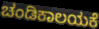
ಚಂಡಿಕಾಲಯಕೆ